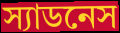
স্যাডনেস